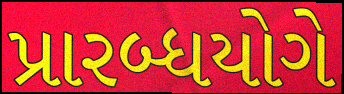
પ્રારબ્ધયોગે